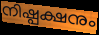
നിഷ്പക്ഷനും